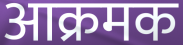
आक्रमक